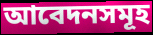
আবেদনসমূহ